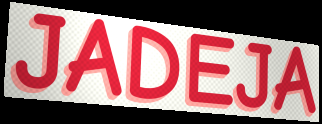
JADEJA